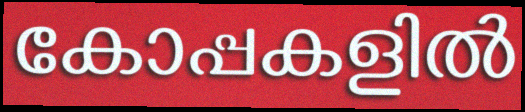
കോപ്പകളിൽ